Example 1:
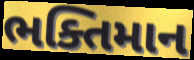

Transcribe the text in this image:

ભક્તિમાન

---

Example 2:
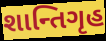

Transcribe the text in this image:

શાન્તિગૃહ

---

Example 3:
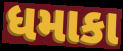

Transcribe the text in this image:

ધમાકા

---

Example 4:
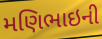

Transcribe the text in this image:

મણિભાઇની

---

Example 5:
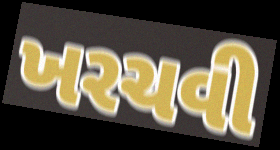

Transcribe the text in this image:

ખરચવી